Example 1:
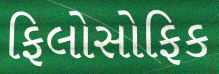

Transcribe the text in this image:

ફિલોસોફિક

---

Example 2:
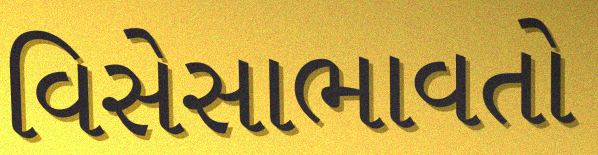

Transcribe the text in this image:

વિસેસાભાવતો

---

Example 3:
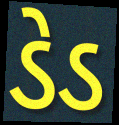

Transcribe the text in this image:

ડેડ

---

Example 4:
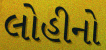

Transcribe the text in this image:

લોહીનો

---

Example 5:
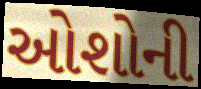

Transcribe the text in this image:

ઓશોની